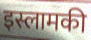
इस्लामकी